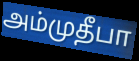
அம்முதீபா